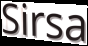
Sirsa